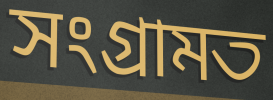
সংগ্ৰামত